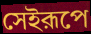
সেইরূপে